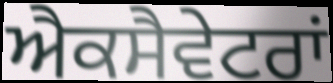
ਐਕਸੈਵੇਟਰਾਂ